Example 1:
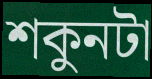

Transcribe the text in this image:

শকুনটা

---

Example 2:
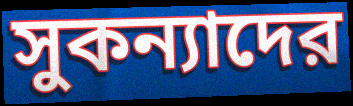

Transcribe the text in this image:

সুকন্যাদের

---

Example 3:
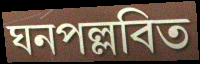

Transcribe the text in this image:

ঘনপল্লবিত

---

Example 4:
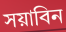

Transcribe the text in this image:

সয়াবিন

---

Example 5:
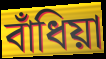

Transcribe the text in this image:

বাঁধিয়া